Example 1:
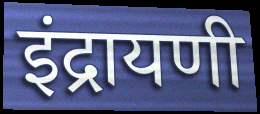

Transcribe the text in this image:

इंद्रायणी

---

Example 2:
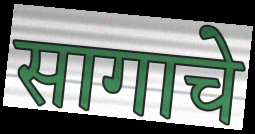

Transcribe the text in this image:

सागाचे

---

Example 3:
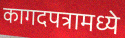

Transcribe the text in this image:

कागदपत्रामध्ये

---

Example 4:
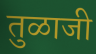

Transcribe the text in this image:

तुळाजी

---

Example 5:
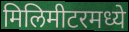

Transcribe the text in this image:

मिलिमीटरमध्ये